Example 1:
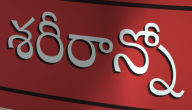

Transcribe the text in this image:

శరీరాన్నో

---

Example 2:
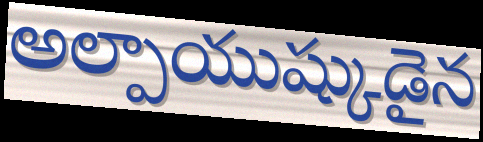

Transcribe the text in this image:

అల్పాయుష్కుడైన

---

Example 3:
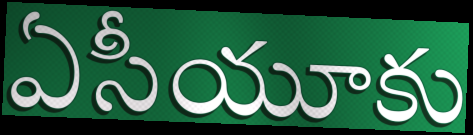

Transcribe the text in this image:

ఏసీయూకు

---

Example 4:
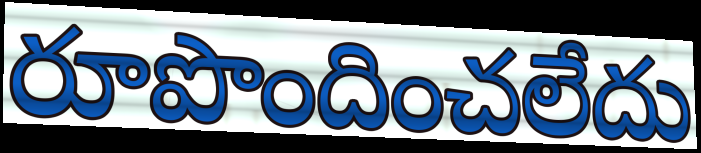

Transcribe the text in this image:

రూపొందించలేదు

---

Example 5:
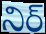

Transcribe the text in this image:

నిర్